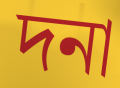
দনা